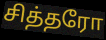
சித்தரோ